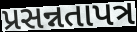
પ્રસન્નતાપત્ર